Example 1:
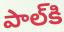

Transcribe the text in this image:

పాల్‌కి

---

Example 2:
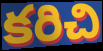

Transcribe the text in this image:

కరిచి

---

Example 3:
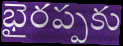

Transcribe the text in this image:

భైరప్పకు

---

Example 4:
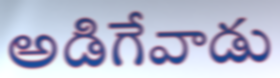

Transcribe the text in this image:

అడిగేవాడు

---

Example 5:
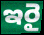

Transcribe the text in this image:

ఇరై